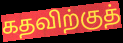
கதவிற்குத்